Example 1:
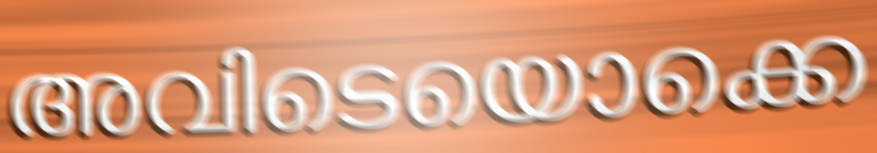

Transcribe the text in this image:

അവിടെയൊക്കെ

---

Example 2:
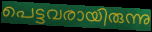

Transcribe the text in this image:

പെട്ടവരായിരുന്നു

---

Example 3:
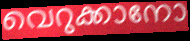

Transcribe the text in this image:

വെറുക്കാനോ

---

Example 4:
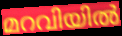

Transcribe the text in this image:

മറവിയിൽ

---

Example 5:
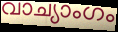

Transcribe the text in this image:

വാച്യാംഗം